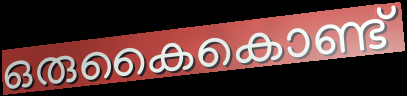
ഒരുകൈകൊണ്ട്